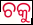
ଚକୁ